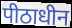
पीठाधीन